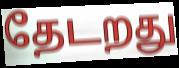
தேடறது